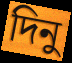
দিনু